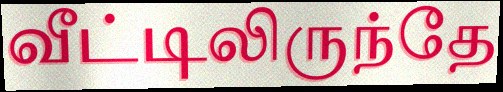
வீட்டிலிருந்தே